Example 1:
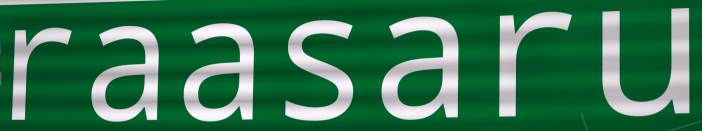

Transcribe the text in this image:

raasaru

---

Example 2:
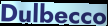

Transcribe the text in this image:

Dulbecco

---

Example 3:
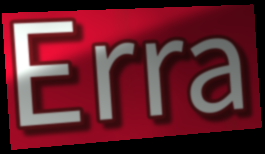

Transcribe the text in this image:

Erra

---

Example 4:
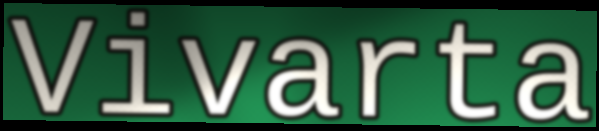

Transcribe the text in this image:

Vivarta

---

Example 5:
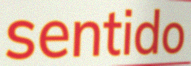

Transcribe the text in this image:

sentido